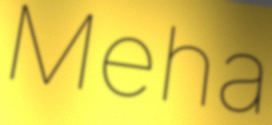
Meha